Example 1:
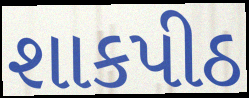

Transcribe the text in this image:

શાકપીઠ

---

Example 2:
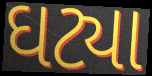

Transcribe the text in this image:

ઘટ્યા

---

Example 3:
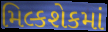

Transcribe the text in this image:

મિલ્કશેકમાં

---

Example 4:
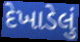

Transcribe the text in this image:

દેખાડેલું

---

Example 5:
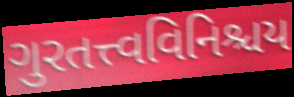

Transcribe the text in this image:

ગુરતત્ત્વવિનિશ્ચય